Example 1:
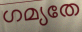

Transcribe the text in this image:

ഗമ്യതേ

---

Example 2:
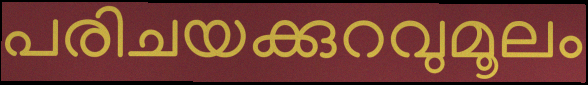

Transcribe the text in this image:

പരിചയക്കുറവുമൂലം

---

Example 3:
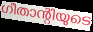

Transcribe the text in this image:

ഗീതാന്റിയുടെ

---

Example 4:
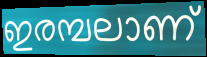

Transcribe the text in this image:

ഇരമ്പലാണ്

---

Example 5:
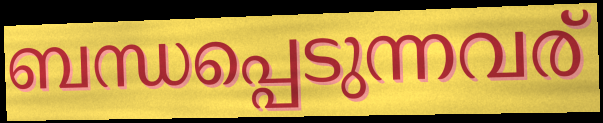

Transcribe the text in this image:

ബന്ധപ്പെടുന്നവര്